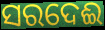
ସରଦେଈ